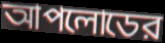
আপলোডের